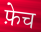
फ़ेच